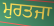
ਮੁਰਤਜਾ